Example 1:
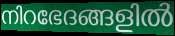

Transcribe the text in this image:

നിറഭേദങ്ങളിൽ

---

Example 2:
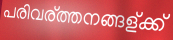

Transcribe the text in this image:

പരിവര്ത്തനങ്ങള്ക്ക്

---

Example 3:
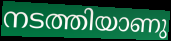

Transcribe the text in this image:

നടത്തിയാണു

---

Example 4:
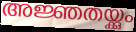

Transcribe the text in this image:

അജ്ഞതയ്ക്കും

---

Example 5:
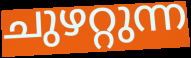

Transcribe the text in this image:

ചുഴറ്റുന്ന